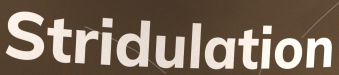
Stridulation